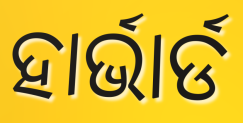
ହାର୍ଭାର୍ଡ